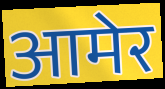
आमेर